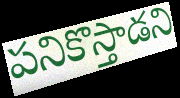
పనికొస్తాడని